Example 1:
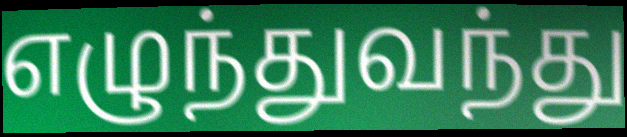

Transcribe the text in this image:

எழுந்துவந்து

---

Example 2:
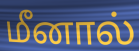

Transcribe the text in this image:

மீனால்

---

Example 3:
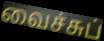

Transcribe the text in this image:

வைச்சுப்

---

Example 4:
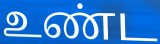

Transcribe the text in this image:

உண்ட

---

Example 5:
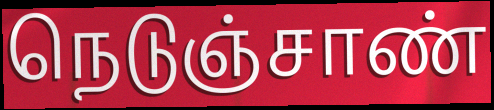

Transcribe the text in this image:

நெடுஞ்சாண்